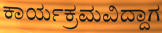
ಕಾರ್ಯಕ್ರಮವಿದ್ದಾಗ